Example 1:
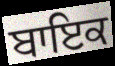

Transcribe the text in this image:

ਬਾਇਕ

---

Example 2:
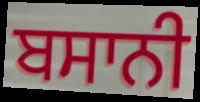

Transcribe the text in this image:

ਬਸਾਨੀ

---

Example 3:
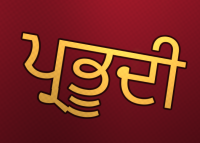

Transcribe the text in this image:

ਪ੍ਰਭੂਦੀ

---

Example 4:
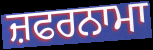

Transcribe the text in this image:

ਜ਼ਫਰਨਾਮਾ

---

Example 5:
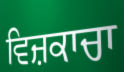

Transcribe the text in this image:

ਵਿਜ਼ਕਾਚਾ